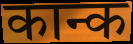
कान्क